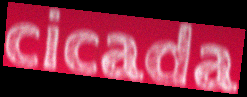
cicada